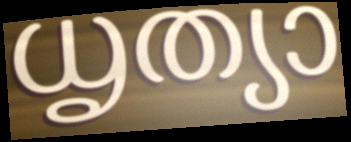
ധൃത്യാ